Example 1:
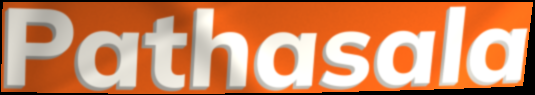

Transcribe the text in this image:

Pathasala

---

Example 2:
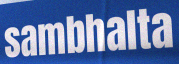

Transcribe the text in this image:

sambhalta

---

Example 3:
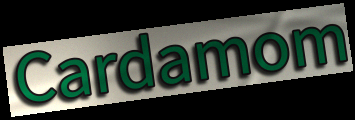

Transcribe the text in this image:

Cardamom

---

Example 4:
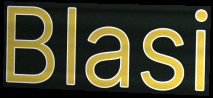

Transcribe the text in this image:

Blasi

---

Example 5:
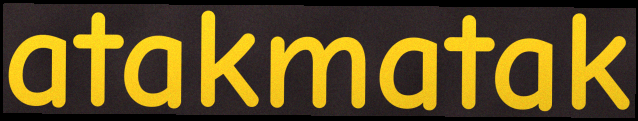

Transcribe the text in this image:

atakmatak